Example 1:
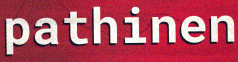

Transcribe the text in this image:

pathinen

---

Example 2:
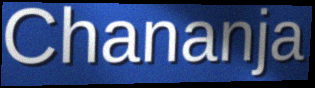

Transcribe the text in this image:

Chananja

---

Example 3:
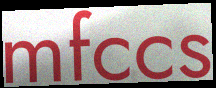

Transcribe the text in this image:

mfccs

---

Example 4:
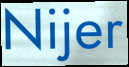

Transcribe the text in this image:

Nijer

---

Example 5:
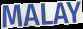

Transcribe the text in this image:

MALAY